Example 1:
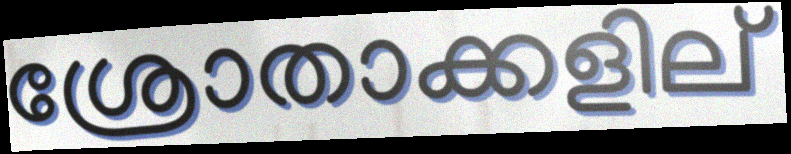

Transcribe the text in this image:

ശ്രോതാക്കളില്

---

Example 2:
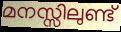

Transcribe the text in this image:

മനസ്സിലുണ്ട്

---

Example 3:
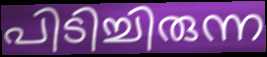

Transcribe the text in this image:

പിടിച്ചിരുന്ന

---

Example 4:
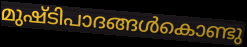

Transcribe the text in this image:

മുഷ്ടിപാദങ്ങൾകൊണ്ടു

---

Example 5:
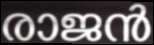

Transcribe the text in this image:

രാജൻ